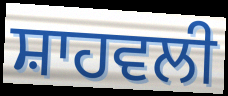
ਸ਼ਾਹਵਲੀ